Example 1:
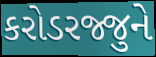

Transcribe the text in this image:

કરોડરજ્જુને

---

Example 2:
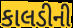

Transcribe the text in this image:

કાલડીની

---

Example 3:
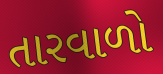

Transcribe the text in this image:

તારવાળો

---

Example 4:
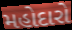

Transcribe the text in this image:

મહોદારો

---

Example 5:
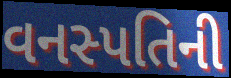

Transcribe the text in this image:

વનસ્પતિની